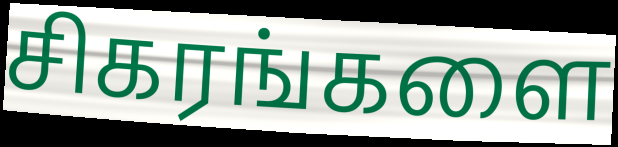
சிகரங்களை